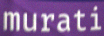
murati